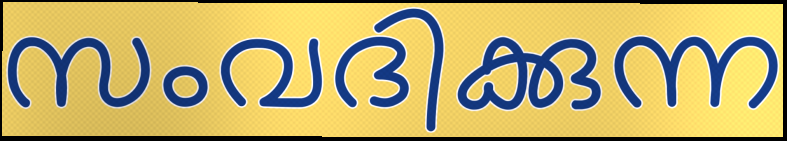
സംവദിക്കുന്ന